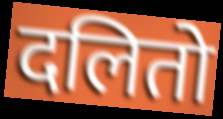
दलितो